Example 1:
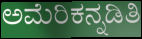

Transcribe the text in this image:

ಅಮೆರಿಕನ್ನಡಿತಿ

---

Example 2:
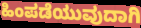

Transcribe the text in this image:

ಹಿಂಪಡೆಯುವುದಾಗಿ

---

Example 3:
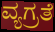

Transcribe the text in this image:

ವ್ಯಗ್ರತೆ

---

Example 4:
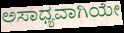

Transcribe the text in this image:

ಅಸಾಧ್ಯವಾಗಿಯೇ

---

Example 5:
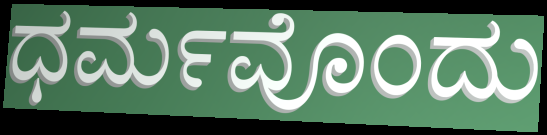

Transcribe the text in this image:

ಧರ್ಮವೊಂದು